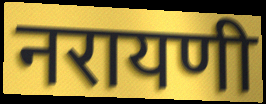
नरायणी